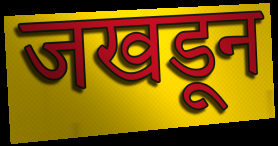
जखडून